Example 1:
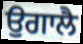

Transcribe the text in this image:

ਉਗਾਲੈ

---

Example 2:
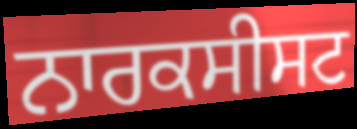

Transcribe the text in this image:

ਨਾਰਕਸੀਸਟ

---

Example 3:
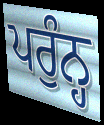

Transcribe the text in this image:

ਪਰੁੰਨ੍ਹ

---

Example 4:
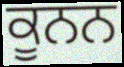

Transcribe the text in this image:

ਕੂਨਨ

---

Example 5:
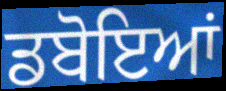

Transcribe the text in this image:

ਡਬੋਇਆਂ